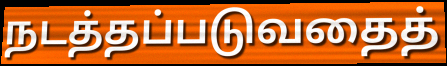
நடத்தப்படுவதைத்